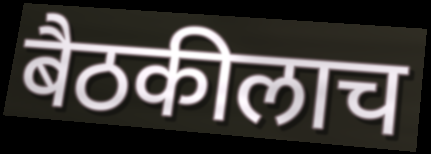
बैठकीलाच